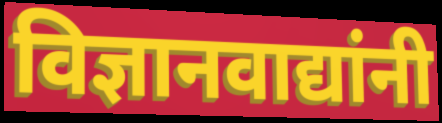
विज्ञानवाद्यांनी